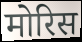
मोरिस